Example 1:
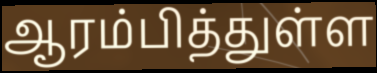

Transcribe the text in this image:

ஆரம்பித்துள்ள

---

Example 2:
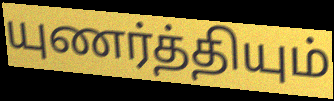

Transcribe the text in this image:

யுணர்த்தியும்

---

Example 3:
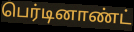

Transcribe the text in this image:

பெர்டினாண்ட்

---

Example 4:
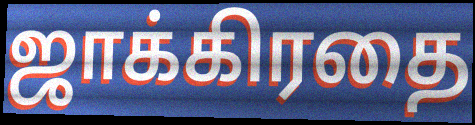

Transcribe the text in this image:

ஜாக்கிரதை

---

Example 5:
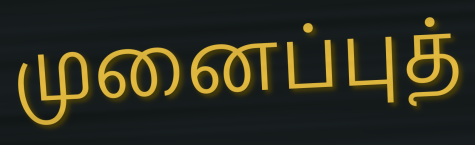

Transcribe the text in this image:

முனைப்புத்